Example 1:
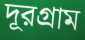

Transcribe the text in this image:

দূরগ্রাম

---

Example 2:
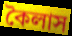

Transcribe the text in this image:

কৈলাস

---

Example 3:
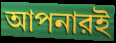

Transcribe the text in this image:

আপনারই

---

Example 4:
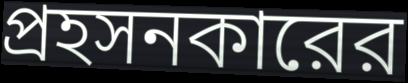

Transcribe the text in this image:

প্রহসনকারের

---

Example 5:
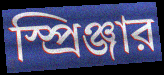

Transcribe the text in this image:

স্প্রিঞ্জার